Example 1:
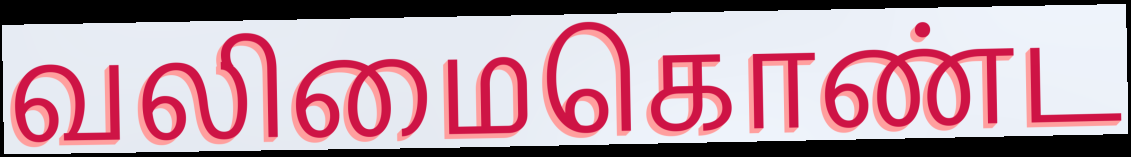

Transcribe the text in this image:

வலிமைகொண்ட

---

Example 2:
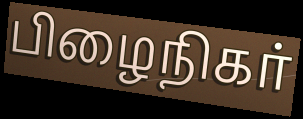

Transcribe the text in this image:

பிழைநிகர்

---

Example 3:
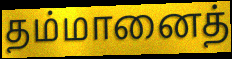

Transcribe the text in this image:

தம்மானைத்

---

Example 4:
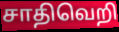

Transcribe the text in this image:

சாதிவெறி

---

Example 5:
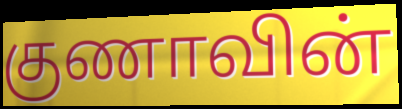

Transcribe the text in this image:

குணாவின்